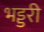
भड्डरी